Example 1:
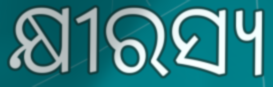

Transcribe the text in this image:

କ୍ଷୀରସ୍ୟ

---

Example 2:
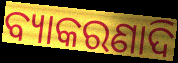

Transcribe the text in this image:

ବ୍ୟାକରଣାଦି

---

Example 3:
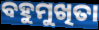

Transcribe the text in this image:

ବହୁମୁଖିତା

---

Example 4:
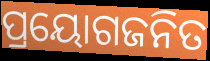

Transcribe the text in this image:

ପ୍ରୟୋଗଜନିତ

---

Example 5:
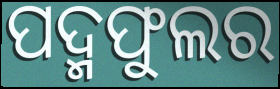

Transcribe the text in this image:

ପଦ୍ମଫୁଲର